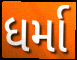
ધર્મા